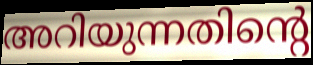
അറിയുന്നതിന്റെ